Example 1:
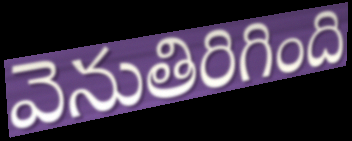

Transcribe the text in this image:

వెనుతిరిగింది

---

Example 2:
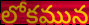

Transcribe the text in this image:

లోకమున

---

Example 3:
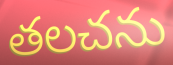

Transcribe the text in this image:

తలచను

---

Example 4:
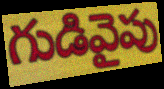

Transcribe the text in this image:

గుడివైపు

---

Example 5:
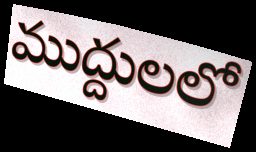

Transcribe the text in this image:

ముద్దులలో